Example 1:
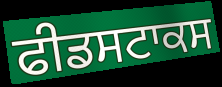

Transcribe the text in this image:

ਫੀਡਸਟਾਕਸ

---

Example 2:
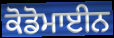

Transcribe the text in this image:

ਕੋਡੋਮਾਈਨ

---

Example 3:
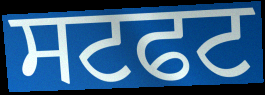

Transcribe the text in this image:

ਸਟਫਟ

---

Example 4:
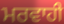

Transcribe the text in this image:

ਮਰਵਾਹੀ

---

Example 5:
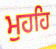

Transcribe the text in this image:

ਮੁਹਹਿ